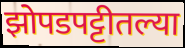
झोपडपट्टीतल्या